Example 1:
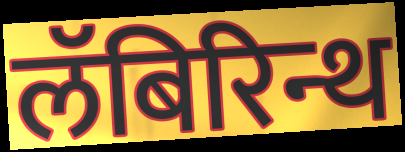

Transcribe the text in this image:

लॅबिरिन्थ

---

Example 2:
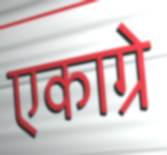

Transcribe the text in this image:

एकाग्रे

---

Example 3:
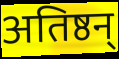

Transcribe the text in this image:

अतिष्ठन्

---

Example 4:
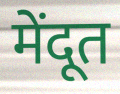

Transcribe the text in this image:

मेंदूत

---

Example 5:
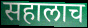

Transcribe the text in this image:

सहालाच